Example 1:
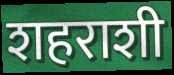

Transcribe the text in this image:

शहराशी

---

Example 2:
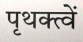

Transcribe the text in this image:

पृथक्त्वें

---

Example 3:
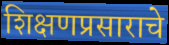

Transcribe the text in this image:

शिक्षणप्रसाराचे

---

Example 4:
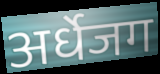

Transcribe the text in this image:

अर्धेजग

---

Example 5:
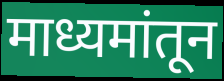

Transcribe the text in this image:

माध्यमांतून